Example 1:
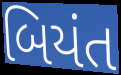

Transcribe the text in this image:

બિયંત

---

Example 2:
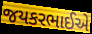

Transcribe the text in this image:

જયકરભાઈએ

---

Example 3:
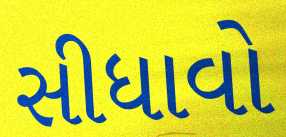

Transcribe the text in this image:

સીધાવો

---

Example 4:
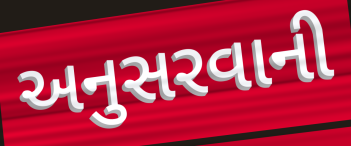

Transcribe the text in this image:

અનુસરવાની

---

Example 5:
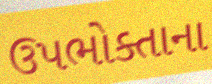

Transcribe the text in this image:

ઉપભોક્તાના